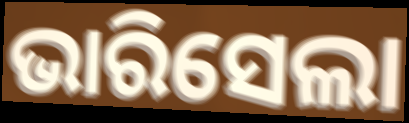
ଭାରିସେଲା